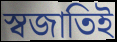
স্বজাতিই